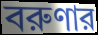
বরুণার